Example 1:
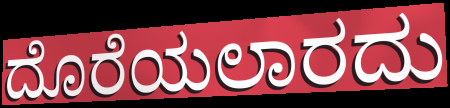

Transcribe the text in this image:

ದೊರೆಯಲಾರದು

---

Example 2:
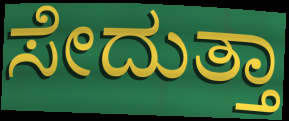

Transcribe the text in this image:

ಸೇದುತ್ತಾ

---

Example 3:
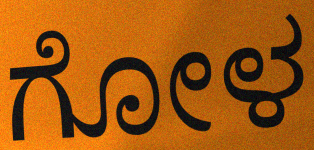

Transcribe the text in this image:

ಗೋಳ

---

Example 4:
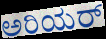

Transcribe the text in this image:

ಅರಿಯರ್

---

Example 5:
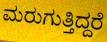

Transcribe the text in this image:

ಮರುಗುತ್ತಿದ್ದರೆ